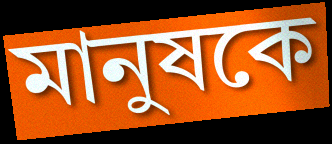
মানুষকে